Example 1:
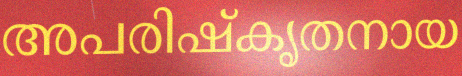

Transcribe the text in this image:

അപരിഷ്കൃതനായ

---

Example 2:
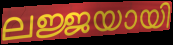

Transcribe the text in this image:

ലജ്ജയായി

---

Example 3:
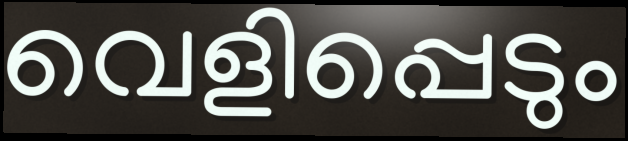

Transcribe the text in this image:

വെളിപ്പെടും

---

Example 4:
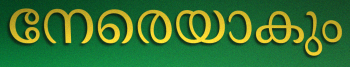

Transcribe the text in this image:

നേരെയാകും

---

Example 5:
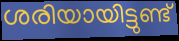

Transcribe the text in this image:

ശരിയായിട്ടുണ്ട്